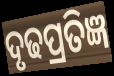
ଦୃଢପ୍ରତିଜ୍ଞ